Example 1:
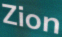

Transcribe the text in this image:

Zion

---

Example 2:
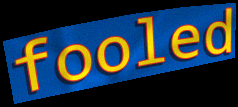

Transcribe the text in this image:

fooled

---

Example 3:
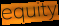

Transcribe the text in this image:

equity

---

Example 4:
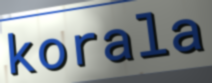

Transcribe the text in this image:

korala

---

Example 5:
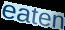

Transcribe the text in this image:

eaten